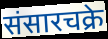
संसारचक्रे